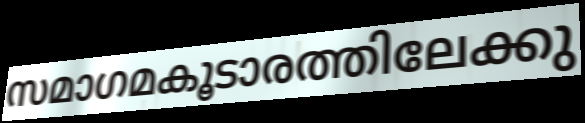
സമാഗമകൂടാരത്തിലേക്കു